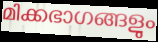
മിക്കഭാഗങ്ങളും